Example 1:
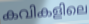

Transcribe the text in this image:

കവികളിലെ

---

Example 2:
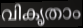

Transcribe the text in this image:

വികൃതാം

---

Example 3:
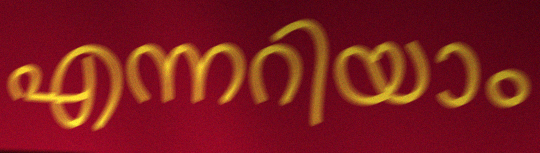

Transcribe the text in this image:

എന്നറിയാം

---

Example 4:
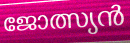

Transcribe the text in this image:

ജോത്സ്യൻ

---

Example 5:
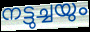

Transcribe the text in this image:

നട്ടുച്ചയും